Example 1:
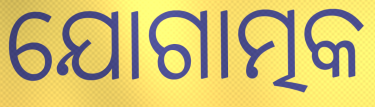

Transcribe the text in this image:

ଯୋଗାତ୍ମକ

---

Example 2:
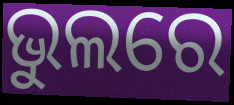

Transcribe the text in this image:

ଭୁଲରେ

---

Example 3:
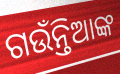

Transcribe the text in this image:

ଗଉଁନ୍ତିଆଙ୍କ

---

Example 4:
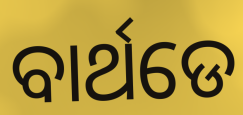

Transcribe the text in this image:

ବାର୍ଥଡେ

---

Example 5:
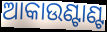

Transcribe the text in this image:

ଆକାଉଣ୍ଟାଣ୍ଟ